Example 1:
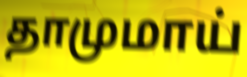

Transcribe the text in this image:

தாமுமாய்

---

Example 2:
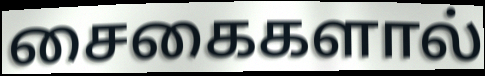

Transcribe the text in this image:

சைகைகளால்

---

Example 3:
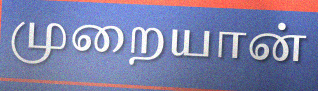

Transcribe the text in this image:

முறையான்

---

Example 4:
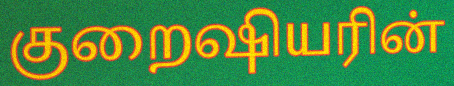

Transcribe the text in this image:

குறைஷியரின்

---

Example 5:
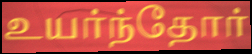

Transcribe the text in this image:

உயர்ந்தோர்